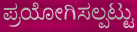
ಪ್ರಯೋಗಿಸಲ್ಪಟ್ಟು